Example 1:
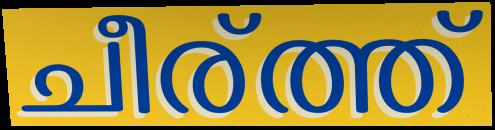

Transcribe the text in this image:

ചീര്ത്ത്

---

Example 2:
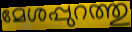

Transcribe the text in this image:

മേശപ്പുറത്തു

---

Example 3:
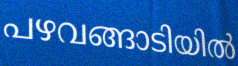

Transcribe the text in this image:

പഴവങ്ങാടിയിൽ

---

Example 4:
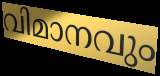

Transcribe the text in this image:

വിമാനവും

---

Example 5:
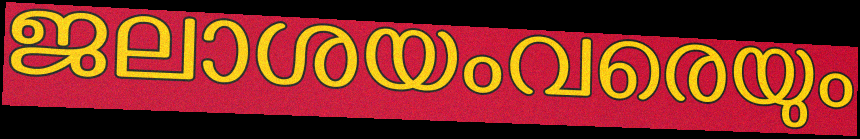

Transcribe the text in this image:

ജലാശയംവരെയും